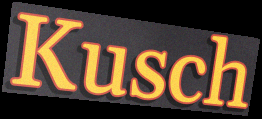
Kusch